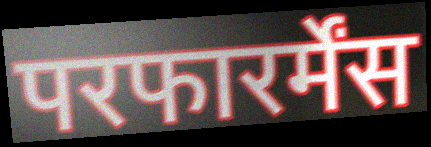
परफारर्मेंस